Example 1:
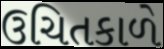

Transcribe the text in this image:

ઉચિતકાળે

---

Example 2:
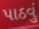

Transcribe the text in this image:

પાઠવું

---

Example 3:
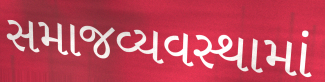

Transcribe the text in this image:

સમાજવ્યવસ્થામાં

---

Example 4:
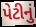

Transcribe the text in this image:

પેટીનું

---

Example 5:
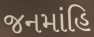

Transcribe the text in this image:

જનમાંહિ